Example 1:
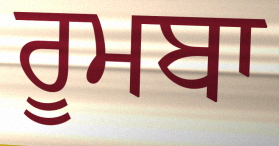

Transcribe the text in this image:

ਰੂਮਬਾ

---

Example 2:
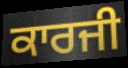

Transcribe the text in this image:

ਕਾਰਜੀ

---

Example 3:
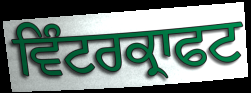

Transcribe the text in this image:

ਵਿੰਟਰਕ੍ਰਾਫਟ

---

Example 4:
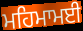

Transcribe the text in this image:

ਮਹਿਮਾਮਈ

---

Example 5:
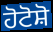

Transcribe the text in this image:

ਹੋਟੋਸ਼ੋ